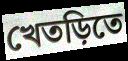
খেতড়িতে